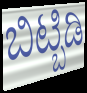
ಬಿಟ್ಬಿಡಿ